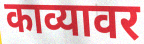
काव्यावर